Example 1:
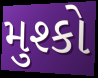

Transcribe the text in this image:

મુશ્કો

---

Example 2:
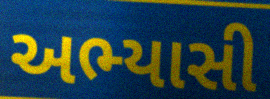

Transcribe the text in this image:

અભ્યાસી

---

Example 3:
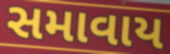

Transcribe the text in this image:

સમાવાય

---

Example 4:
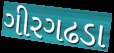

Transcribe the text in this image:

ગીરગઢડા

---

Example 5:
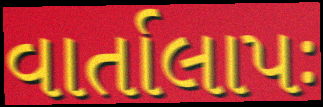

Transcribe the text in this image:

વાર્તાલાપઃ